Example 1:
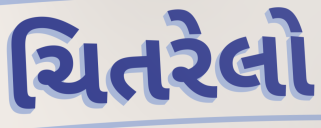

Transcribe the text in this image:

ચિતરેલો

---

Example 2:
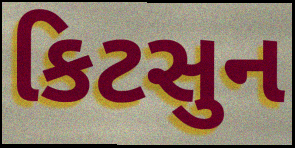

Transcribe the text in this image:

કિટસુન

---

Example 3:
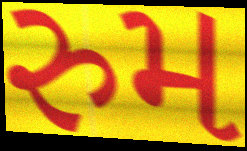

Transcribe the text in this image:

રુમ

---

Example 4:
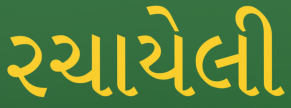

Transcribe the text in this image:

રચાયેલી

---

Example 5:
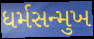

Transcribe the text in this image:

ધર્મસન્મુખ